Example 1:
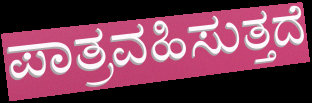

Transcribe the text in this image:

ಪಾತ್ರವಹಿಸುತ್ತದೆ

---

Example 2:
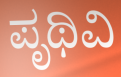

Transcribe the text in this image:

ಪೃಥಿವಿ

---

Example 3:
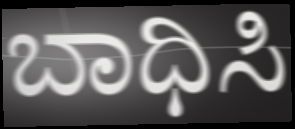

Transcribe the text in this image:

ಬಾಧಿಸಿ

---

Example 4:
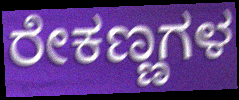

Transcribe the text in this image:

ರೇಕಣ್ಣಗಳ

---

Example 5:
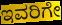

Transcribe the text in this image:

ಇವರಿಗೇ